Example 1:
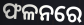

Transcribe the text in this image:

ଫଳନରେ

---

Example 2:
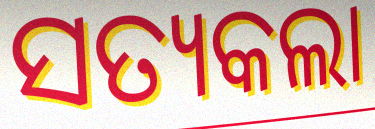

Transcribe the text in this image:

ସତ୍ୟକଲା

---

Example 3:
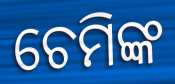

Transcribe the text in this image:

ଚେମିଙ୍କ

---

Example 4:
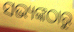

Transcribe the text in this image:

ସଭ୍ୟଙ୍କଠାରୁ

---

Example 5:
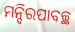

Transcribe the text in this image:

ମନ୍ଦିରପାବଚ୍ଛ